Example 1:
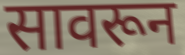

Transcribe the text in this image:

सावरून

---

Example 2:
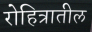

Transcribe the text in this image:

रोहित्रातील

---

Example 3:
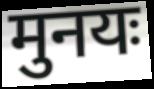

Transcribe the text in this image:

मुनयः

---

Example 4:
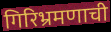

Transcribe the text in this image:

गिरिभ्रमणाची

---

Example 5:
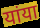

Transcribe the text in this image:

यांया